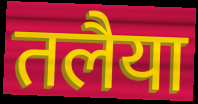
तलैया